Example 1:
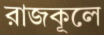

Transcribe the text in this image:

রাজকূলে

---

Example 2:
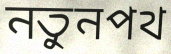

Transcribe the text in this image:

নতুনপথ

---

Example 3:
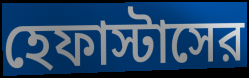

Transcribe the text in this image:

হেফাস্টাসের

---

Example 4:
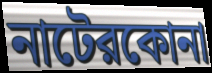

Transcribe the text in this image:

নাটেরকোনা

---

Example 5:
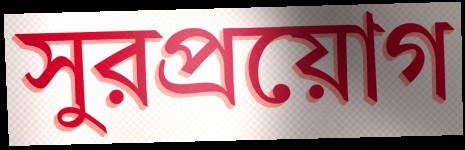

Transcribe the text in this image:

সুরপ্রয়োগ